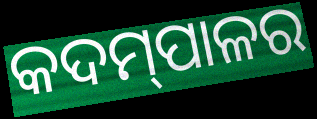
କଦମ୍‍ପାଳର